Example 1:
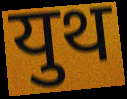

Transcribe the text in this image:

युथ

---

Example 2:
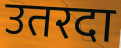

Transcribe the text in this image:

उतरदा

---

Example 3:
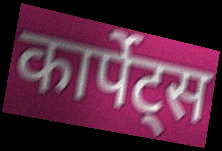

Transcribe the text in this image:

कार्पेट्स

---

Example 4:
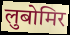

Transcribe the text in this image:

लुबोमिर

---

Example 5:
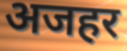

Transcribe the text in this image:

अजहर